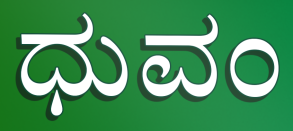
ಧುವಂ